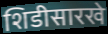
शिडीसारखे